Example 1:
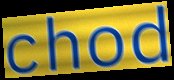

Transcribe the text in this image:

chod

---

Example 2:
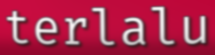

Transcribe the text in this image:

terlalu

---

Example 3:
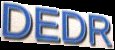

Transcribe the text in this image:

DEDR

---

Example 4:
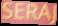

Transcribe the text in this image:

SERAJ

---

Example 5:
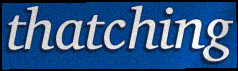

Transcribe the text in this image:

thatching